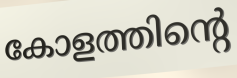
കോളത്തിന്റെ